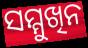
ସମ୍ମୁଖିନ